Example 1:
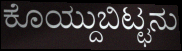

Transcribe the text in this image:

ಕೊಯ್ದುಬಿಟ್ಟನು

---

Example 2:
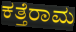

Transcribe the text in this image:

ಕತ್ತೆರಾಮ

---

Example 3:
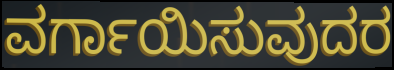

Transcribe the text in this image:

ವರ್ಗಾಯಿಸುವುದರ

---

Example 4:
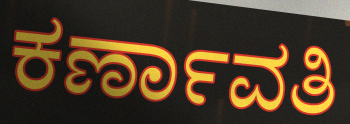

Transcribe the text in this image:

ಕರ್ಣಾವತಿ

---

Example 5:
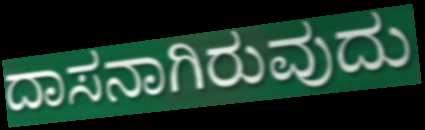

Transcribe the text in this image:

ದಾಸನಾಗಿರುವುದು